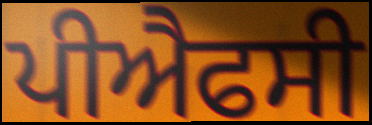
ਪੀਐਫਸੀ